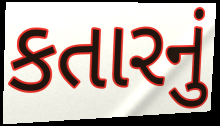
કતારનું